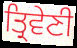
ਤ੍ਰਿਵੇਣੀ